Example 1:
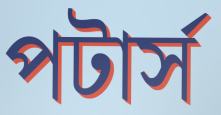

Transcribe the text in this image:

পটার্স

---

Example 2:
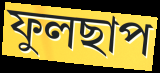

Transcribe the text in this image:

ফুলছাপ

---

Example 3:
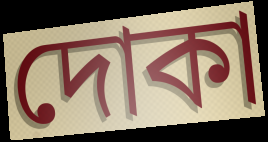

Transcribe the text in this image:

দোকা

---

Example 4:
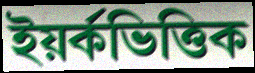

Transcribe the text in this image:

ইয়র্কভিত্তিক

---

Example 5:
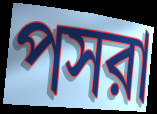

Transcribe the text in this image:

পসরা